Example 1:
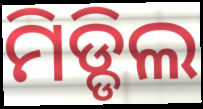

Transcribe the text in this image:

ମିଡ୍ଡିଲ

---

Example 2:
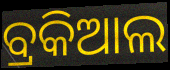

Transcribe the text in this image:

ବ୍ରକିଆଲ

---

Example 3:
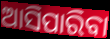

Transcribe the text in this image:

ଆସିପାରିବା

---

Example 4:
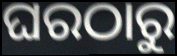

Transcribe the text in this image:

ଘରଠାରୁ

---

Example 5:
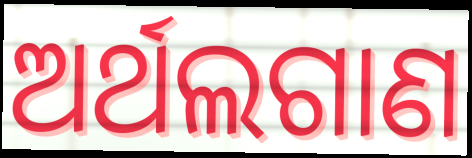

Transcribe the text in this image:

ଅର୍ଥଲଗାଣ